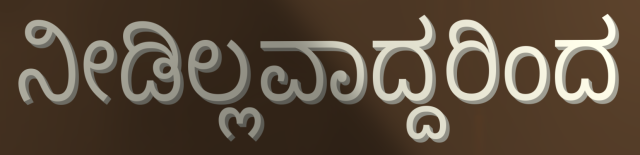
ನೀಡಿಲ್ಲವಾದ್ದರಿಂದ